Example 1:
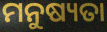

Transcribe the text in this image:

ମନୁଷ୍ୟତା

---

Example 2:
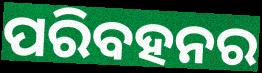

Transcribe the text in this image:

ପରିବହନର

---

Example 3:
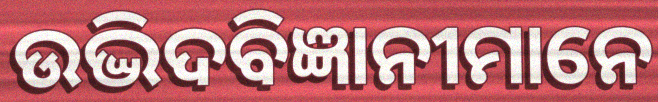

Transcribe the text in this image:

ଉଦ୍ଭିଦବିଜ୍ଞାନୀମାନେ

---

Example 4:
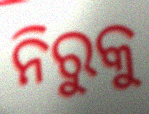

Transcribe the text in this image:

ନିରୁକୁ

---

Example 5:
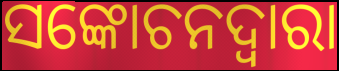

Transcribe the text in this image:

ସଙ୍କୋଚନଦ୍ୱାରା